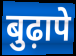
बुढ़ापे